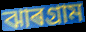
ঝাৰগ্ৰাম